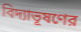
বিদ্যাভূষণের